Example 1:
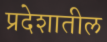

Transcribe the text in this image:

प्रदेशातील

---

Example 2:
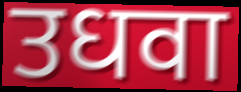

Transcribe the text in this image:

उधवा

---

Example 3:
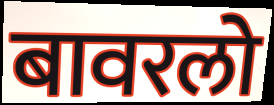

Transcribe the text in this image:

बावरलो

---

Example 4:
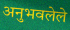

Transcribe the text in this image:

अनुभवलेले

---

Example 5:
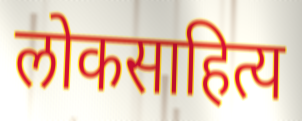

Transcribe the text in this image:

लोकसाहित्य